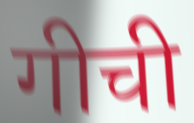
गीची